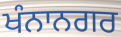
ਖੰਨਾਨਗਰ